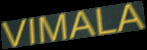
VIMALA